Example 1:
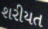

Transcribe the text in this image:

શરીયત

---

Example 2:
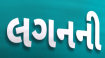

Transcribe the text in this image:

લગનની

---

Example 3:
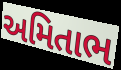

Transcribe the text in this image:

અમિતાભ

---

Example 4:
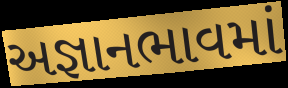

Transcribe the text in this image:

અજ્ઞાનભાવમાં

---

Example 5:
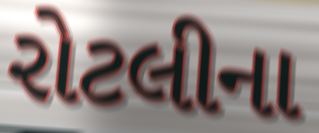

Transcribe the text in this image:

રોટલીના